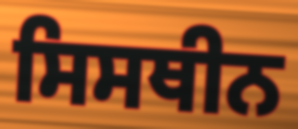
ਸਿਸਥੀਨ